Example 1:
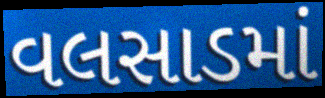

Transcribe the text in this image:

વલસાડમાં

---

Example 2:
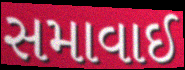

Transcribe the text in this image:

સમાવાઈ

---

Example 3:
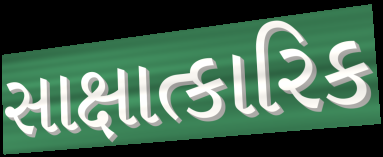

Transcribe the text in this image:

સાક્ષાત્કારિક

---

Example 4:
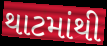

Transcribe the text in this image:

થાટમાંથી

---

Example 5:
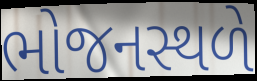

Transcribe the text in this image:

ભોજનસ્થળે